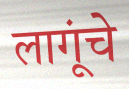
लागूंचे